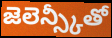
జెలెన్స్కీతో